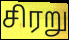
சிரறு